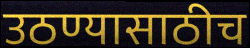
उठण्यासाठीच